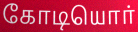
கோடியொர்